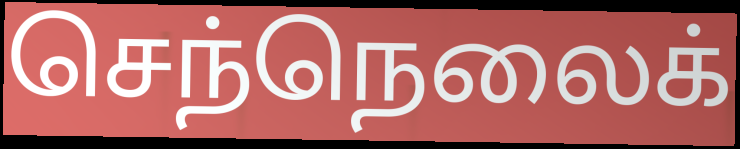
செந்நெலைக்